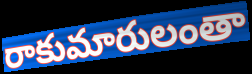
రాకుమారులంతా